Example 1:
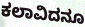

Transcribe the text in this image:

ಕಲಾವಿದನೂ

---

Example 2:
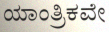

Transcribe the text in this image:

ಯಾಂತ್ರಿಕವೇ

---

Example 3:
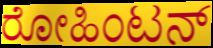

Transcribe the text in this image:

ರೋಹಿಂಟನ್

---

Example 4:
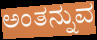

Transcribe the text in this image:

ಅಂತನ್ನುವ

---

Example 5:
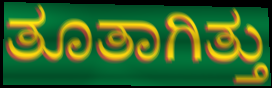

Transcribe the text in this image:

ತೂತಾಗಿತ್ತು